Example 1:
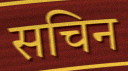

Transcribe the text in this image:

सचिन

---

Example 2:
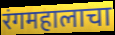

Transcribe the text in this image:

रंगमहालाचा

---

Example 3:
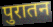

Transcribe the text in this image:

पुरातन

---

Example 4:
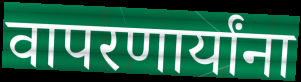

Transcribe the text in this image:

वापरणार्यांना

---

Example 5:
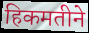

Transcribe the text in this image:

हिकमतीने